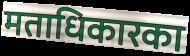
मताधिकारका